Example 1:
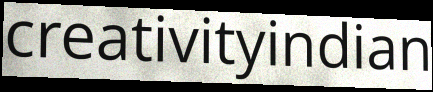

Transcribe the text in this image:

creativityindian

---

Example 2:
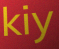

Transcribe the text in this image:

kiy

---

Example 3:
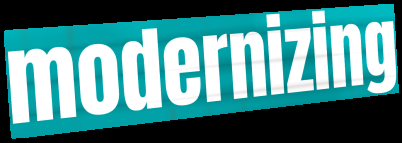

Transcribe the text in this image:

modernizing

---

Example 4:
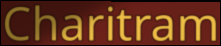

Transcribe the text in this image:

Charitram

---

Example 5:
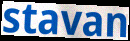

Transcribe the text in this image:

stavan